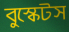
বুস্কেটস